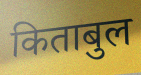
किताबुल